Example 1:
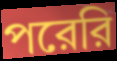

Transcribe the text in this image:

পরেরি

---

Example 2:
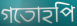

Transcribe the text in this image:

গতোহপি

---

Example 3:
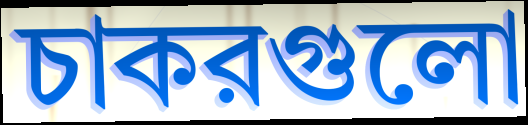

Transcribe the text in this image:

চাকরগুলো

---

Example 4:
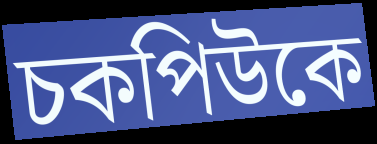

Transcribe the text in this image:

চকপিউকে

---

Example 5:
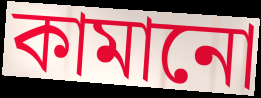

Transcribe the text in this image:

কামানো